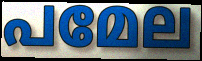
പമേല